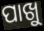
ପାଖୁ